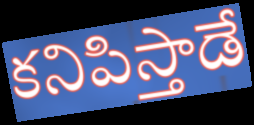
కనిపిస్తాడే